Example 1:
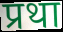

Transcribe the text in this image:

प्रथा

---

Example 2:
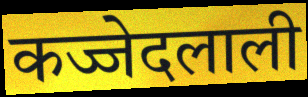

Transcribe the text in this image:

कज्जेदलाली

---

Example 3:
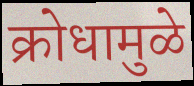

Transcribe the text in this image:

क्रोधामुळे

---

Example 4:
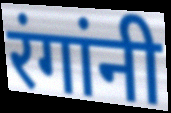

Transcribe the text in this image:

रंगांनी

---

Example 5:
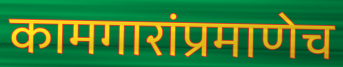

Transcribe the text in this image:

कामगारांप्रमाणेच